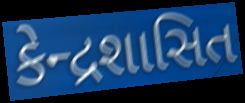
કેન્દ્રશાસિત